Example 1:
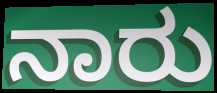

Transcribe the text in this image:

ನಾರು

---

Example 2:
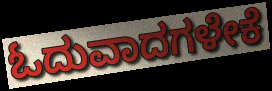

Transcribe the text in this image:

ಓದುವಾದಗಳೇಕೆ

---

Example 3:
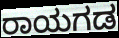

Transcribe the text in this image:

ರಾಯಗಡ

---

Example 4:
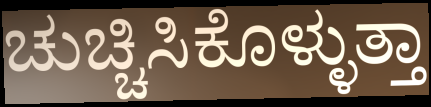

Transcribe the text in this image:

ಚುಚ್ಚಿಸಿಕೊಳ್ಳುತ್ತಾ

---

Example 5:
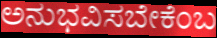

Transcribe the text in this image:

ಅನುಭವಿಸಬೇಕೆಂಬ